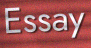
Essay